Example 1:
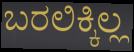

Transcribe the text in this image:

ಬರಲಿಕ್ಕಿಲ್ಲ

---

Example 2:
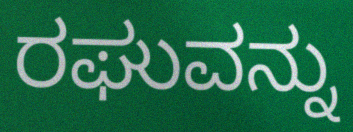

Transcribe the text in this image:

ರಘುವನ್ನು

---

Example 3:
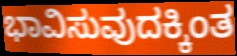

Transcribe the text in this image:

ಭಾವಿಸುವುದಕ್ಕಿಂತ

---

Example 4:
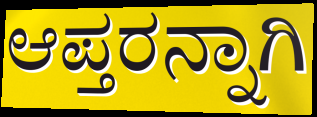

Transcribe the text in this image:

ಆಪ್ತರನ್ನಾಗಿ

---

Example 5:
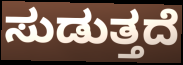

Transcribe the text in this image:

ಸುಡುತ್ತದೆ